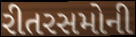
રીતરસમોની